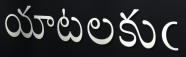
యాటలకుఁ